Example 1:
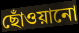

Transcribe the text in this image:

ছোঁওয়ানো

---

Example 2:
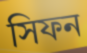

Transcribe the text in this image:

সিফন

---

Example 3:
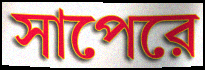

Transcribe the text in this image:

সাপেরে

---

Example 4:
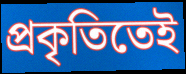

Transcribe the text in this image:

প্রকৃতিতেই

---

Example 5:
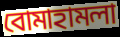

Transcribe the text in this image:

বোমাহামলা